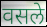
वसले